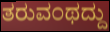
ತರುವಂಥದ್ದು